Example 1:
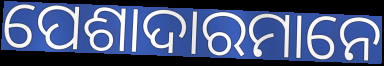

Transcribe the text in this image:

ପେଶାଦାରମାନେ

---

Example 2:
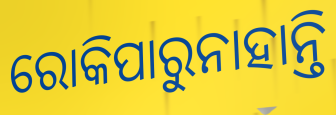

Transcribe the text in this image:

ରୋକିପାରୁନାହାନ୍ତି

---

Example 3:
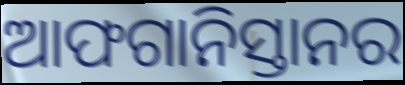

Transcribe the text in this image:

ଆଫଗାନିସ୍ତାନର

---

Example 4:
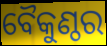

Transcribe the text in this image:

ବୈକୁଣ୍ଠର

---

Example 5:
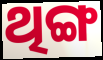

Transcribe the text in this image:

ଥିଙ୍ଗ